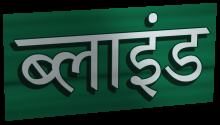
ब्लाइंड